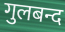
गुलबन्द